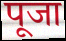
पूजा